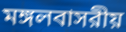
মঙ্গলবাসরীয়